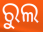
ରୁଲ